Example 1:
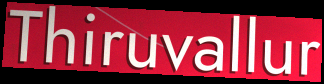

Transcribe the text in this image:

Thiruvallur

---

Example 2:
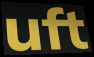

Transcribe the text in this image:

uft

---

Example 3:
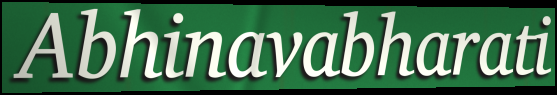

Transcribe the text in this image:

Abhinavabharati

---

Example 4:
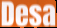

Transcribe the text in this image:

Desa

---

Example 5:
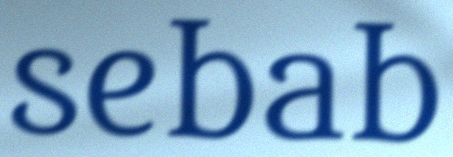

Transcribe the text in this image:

sebab